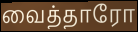
வைத்தாரோ